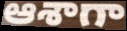
ఆశాగా